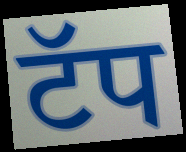
टॅप